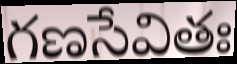
గణసేవితః